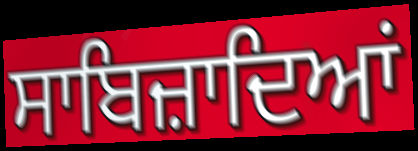
ਸਾਬਿਜ਼ਾਦਿਆਂ